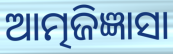
ଆତ୍ମଜିଜ୍ଞାସା